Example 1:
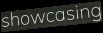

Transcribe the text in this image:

showcasing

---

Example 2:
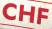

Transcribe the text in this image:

CHF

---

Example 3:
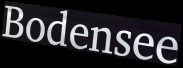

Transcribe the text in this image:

Bodensee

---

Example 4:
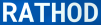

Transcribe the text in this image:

RATHOD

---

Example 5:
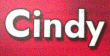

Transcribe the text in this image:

Cindy